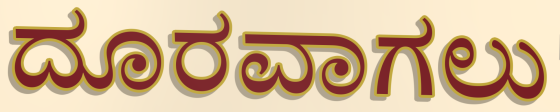
ದೂರವಾಗಲು